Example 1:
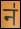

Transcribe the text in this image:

न॑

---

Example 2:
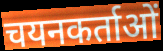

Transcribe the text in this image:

चयनकर्ताओं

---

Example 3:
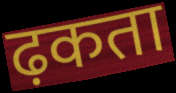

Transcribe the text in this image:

ढ़कता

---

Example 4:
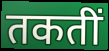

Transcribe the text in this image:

तकतीं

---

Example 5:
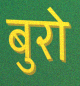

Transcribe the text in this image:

बुरो